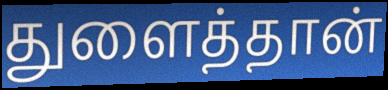
துளைத்தான்